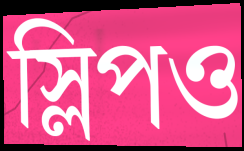
স্লিপও